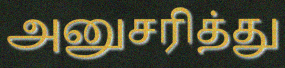
அனுசரித்து